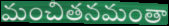
మంచితనమంతా